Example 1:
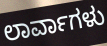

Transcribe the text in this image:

ಲಾರ್ವಾಗಳು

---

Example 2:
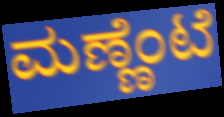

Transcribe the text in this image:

ಮಣ್ಣೆಂಟೆ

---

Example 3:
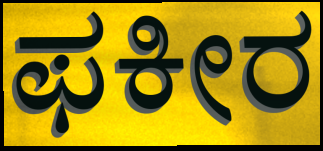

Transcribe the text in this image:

ಫಕೀರ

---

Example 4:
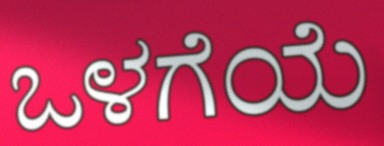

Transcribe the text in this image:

ಒಳಗೆಯೆ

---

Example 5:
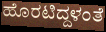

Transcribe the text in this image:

ಹೊರಟಿದ್ದಳಂತೆ